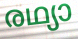
രഥ്യാ